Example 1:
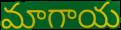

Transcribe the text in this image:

మాగాయ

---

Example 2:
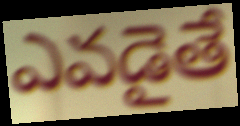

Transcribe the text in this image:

ఎవడైతే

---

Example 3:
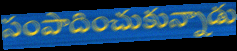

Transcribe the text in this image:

సంపాదించుకున్నాడు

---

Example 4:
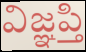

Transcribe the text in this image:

విజ్ఞప్తి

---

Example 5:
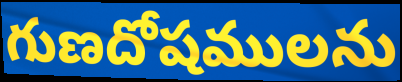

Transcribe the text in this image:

గుణదోషములను